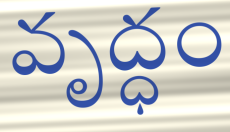
వృద్ధం